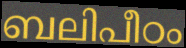
ബലിപീഠം